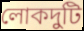
লোকদুটি